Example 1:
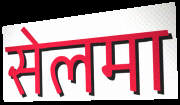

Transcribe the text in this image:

सेलमा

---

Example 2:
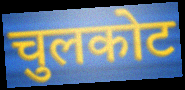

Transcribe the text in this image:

चुलकोट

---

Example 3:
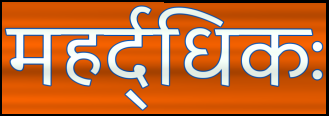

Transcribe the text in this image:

महर्द्धिकः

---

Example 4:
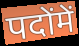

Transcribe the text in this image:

पदोंमें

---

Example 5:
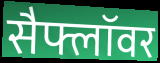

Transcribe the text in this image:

सैफ्लॉवर